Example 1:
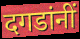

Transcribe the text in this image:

दगडांनीं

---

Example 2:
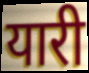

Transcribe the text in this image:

यारी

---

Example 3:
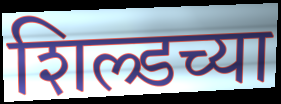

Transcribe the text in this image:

शिल्डच्या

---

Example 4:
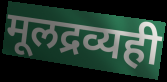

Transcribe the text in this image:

मूलद्रव्यही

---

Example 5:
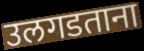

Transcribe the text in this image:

उलगडताना